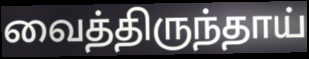
வைத்திருந்தாய்